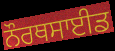
ਨੌਰਥਸਾਈਡ